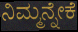
ನಿಮ್ಮನ್ನೇಕೆ